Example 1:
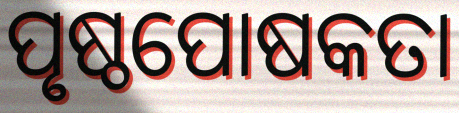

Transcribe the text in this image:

ପୃଷ୍ଠପୋଷକତା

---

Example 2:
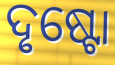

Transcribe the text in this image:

ଦୃଷ୍ଟୋ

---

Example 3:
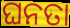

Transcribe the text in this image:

ଘନତା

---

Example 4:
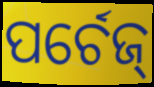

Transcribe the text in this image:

ପର୍ଚେଜ୍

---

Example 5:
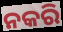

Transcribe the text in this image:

ନକରି